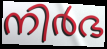
നിർഭ